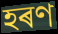
হৰণ